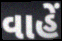
વાહેં